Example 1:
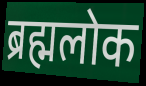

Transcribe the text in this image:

ब्रह्मलोक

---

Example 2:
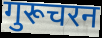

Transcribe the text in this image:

गुरूचरन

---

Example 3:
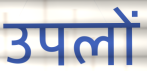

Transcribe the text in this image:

उपलों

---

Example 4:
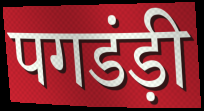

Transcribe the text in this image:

पगडंड़ी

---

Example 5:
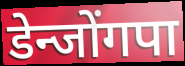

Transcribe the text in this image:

डेन्जोंगपा